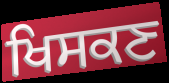
ਖਿਸਕਣ